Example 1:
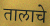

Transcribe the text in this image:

तालाचे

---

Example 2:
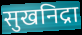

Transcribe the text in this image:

सुखनिद्रा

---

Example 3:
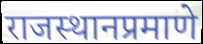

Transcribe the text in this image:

राजस्थानप्रमाणे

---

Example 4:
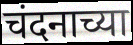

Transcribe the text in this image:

चंदनाच्या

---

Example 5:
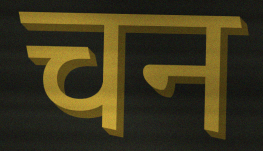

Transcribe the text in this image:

चन